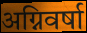
अग्निवर्षा